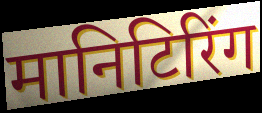
मानिटिरिंग